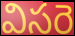
విసరె